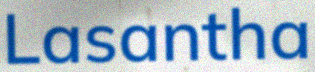
Lasantha